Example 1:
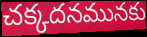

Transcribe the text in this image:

చక్కదనమునకు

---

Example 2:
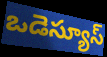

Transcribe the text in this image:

ఒడెస్యూస్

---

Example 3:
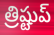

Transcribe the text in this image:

త్రిష్టుప్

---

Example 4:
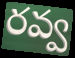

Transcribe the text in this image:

రవ్వ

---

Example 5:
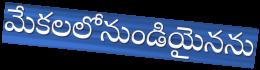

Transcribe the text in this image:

మేకలలోనుండియైనను